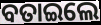
ବତାଇଲେ